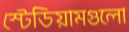
স্টেডিয়ামগুলো